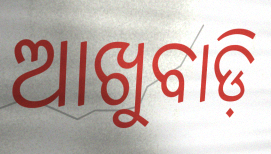
ଆଖୁବାଡ଼ି